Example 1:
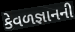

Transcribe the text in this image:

કેવળજ્ઞાનની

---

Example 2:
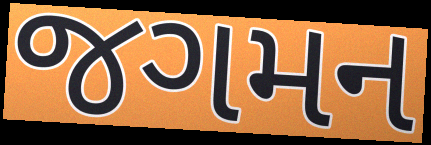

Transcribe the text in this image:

જગમન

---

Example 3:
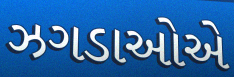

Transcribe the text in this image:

ઝગડાઓએ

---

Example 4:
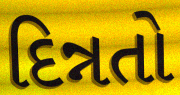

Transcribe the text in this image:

દિન્નતો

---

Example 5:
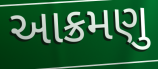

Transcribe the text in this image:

આક્રમણુ